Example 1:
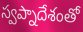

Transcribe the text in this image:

స్వప్నాదేశంతో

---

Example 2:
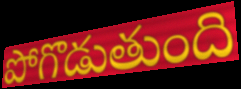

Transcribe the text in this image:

పోగొడుతుంది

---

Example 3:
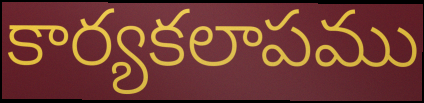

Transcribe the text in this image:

కార్యకలాపము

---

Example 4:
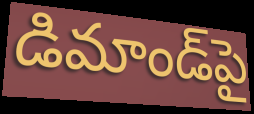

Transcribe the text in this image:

డిమాండ్‌పై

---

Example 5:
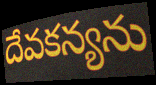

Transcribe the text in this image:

దేవకన్యను